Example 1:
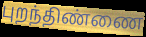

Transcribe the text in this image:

புறந்திண்ணை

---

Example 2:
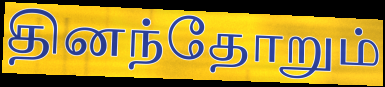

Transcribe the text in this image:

தினந்தோறும்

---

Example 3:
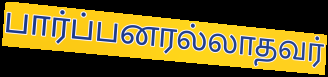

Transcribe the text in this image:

பார்ப்பனரல்லாதவர்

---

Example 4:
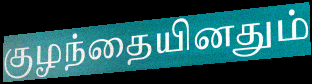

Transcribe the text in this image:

குழந்தையினதும்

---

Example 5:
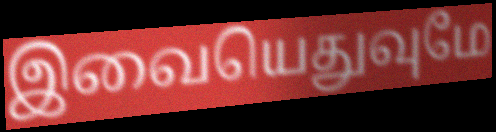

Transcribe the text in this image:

இவையெதுவுமே